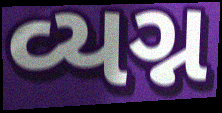
વ્યગ્ન